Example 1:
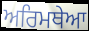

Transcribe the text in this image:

ਅਰਿਮਥੇਆ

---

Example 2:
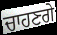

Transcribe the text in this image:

ਚਾਹਣਗੇ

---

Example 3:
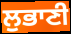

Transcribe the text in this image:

ਲੁਭਾਣੀ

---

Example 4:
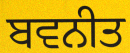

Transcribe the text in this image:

ਬਵਨੀਤ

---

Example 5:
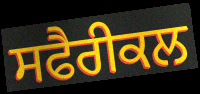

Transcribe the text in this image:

ਸਫੈਰੀਕਲ